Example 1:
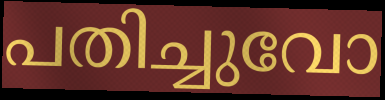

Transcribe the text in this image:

പതിച്ചുവോ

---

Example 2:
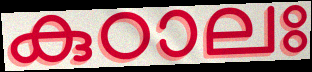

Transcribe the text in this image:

കുഠാലഃ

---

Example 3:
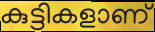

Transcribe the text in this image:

കുട്ടികളാണ്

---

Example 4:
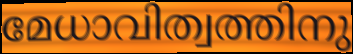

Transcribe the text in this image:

മേധാവിത്വത്തിനു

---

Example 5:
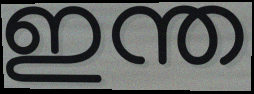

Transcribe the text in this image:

ഇന്ത